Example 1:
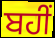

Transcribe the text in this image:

ਬਹੀਂ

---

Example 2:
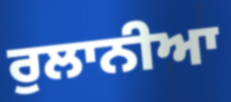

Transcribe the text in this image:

ਰੁਲਾਨੀਆ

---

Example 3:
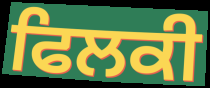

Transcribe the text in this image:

ਫਿਲਕੀ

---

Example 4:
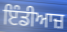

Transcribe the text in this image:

ਇੰਡੀਆਜ਼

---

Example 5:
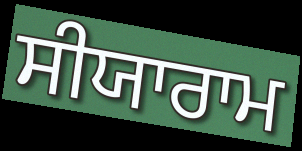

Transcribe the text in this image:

ਸੀਯਾਰਾਮ